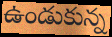
ఉండుకున్న